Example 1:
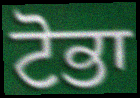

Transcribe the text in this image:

ਟੋਭਾ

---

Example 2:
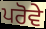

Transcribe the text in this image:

ਪਰੋਵੇ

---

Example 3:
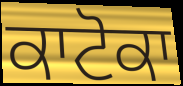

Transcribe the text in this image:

ਕਾਟੋਕਾ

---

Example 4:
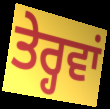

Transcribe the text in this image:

ਤੇਰ੍ਹਵਾਂ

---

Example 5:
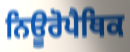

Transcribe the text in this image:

ਨਿਊਰੋਪੈਥਿਕ